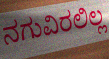
ನಗುವಿರಲಿಲ್ಲ